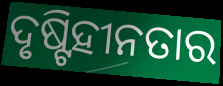
ଦୃଷ୍ଟିହୀନତାର